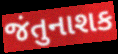
જંતુનાશક